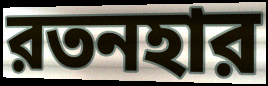
রতনহার